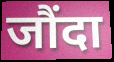
जौंदा